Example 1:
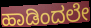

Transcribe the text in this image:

ಹಾಡಿಂದಲೇ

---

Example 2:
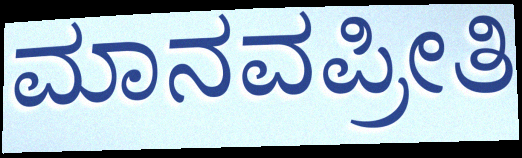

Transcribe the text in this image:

ಮಾನವಪ್ರೀತಿ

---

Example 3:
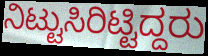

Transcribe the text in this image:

ನಿಟ್ಟುಸಿರಿಟ್ಟಿದ್ದರು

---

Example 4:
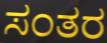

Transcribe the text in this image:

ಸಂತರ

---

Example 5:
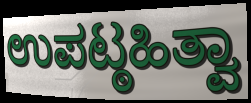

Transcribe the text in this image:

ಉಪಟ್ಠಹಿತ್ವಾ